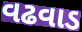
વઢવાડ